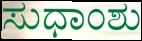
ಸುಧಾಂಶು